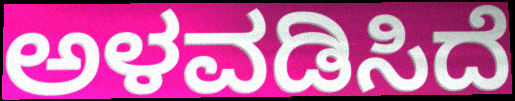
ಅಳವಡಿಸಿದೆ